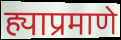
ह्याप्रमाणे